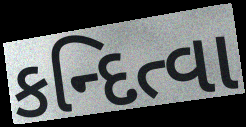
કન્દિત્વા